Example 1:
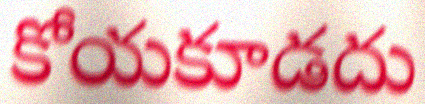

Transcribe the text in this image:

కోయకూడదు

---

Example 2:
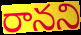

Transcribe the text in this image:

రానని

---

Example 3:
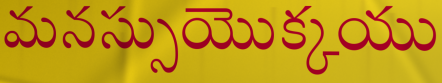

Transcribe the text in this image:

మనస్సుయొక్కయు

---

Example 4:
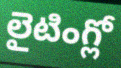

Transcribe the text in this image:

లైటింగ్లో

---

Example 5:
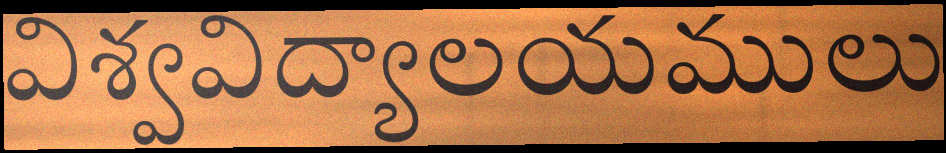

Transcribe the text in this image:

విశ్వవిద్యాలయములు